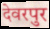
देवरपुर